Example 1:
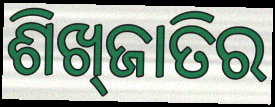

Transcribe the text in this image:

ଶିଖ୍‌ଜାତିର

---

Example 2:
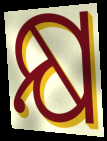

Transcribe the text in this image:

କ୍ଷ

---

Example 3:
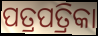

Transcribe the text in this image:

ପତ୍ରପତ୍ରିକା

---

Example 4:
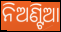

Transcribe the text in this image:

ନିଅଣ୍ଟିଆ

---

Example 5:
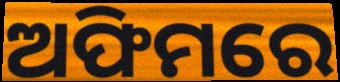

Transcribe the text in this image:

ଅଫିମରେ